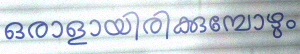
ഒരാളായിരിക്കുമ്പോഴും